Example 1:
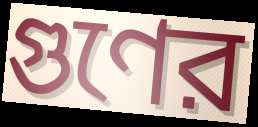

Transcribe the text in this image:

গুণের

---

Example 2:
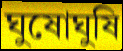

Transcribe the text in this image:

ঘুষোঘুষি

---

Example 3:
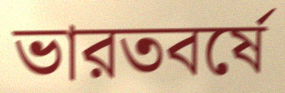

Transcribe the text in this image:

ভারতবর্ষে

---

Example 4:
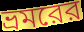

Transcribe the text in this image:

ভ্রমরের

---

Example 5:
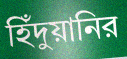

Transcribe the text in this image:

হিঁদুয়ানির